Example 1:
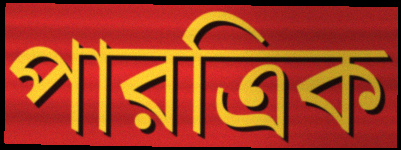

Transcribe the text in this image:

পারত্রিক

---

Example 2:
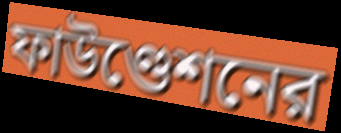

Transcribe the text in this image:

ফাউণ্ডেশনের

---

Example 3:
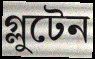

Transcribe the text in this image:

গ্লুটেন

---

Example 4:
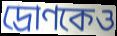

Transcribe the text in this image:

দ্রোণকেও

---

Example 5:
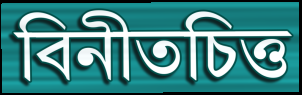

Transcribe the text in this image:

বিনীতচিত্ত